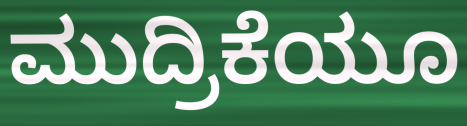
ಮುದ್ರಿಕೆಯೂ